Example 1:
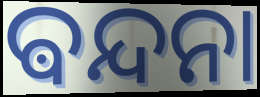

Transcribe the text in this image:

ଵନ୍ଦନା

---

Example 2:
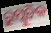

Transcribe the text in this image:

ରୁମ୍ଗୁଡ଼ିକ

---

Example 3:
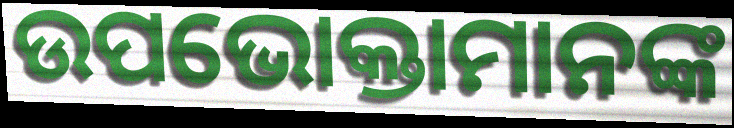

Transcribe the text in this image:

ଉପଭୋକ୍ତାମାନଙ୍କ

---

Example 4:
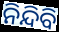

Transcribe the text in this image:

ନିନ୍ଦିବି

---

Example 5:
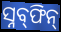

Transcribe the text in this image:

ସ୍ନବ୍‍ଫିନ୍